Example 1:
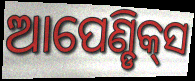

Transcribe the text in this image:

ଆପେଣ୍ଡିକ୍‌ସ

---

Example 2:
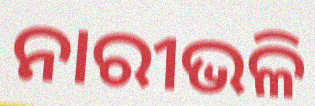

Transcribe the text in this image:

ନାରୀଭଳି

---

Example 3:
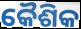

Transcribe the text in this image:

କୈଶିକ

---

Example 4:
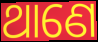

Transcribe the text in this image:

ଥାଣେ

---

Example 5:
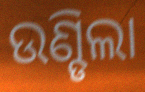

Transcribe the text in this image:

ଉଣ୍ଡିଲା